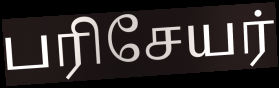
பரிசேயர்